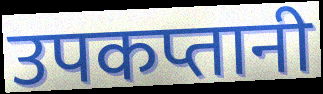
उपकप्तानी